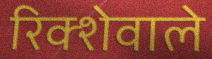
रिक्‍शेवाले